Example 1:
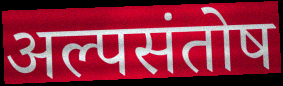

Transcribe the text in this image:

अल्पसंतोष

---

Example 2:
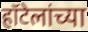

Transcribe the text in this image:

हॉटेलांच्या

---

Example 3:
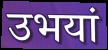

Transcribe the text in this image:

उभयां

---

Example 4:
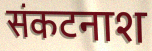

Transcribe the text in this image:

संकटनाश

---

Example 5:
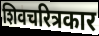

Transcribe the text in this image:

शिवचरित्रकार